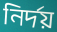
নিৰ্দয়